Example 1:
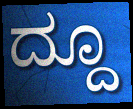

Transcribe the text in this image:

ದ್ದೂ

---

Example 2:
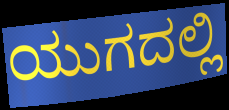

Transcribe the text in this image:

ಯುಗದಲ್ಲಿ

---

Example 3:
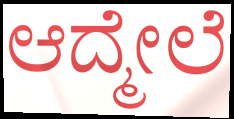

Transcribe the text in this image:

ಆದ್ಮೇಲೆ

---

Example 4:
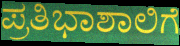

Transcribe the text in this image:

ಪ್ರತಿಭಾಶಾಲಿಗೆ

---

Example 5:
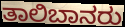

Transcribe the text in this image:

ತಾಲಿಬಾನರು